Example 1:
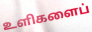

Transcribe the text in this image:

உளிகளைப்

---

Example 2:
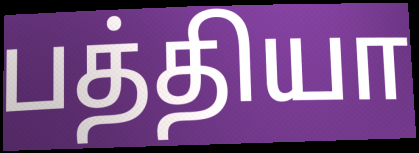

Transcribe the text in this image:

பத்தியா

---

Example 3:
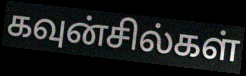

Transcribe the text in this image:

கவுன்சில்கள்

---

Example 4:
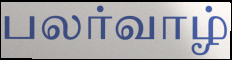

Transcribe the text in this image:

பலர்வாழ்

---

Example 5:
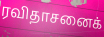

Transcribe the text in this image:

ரவிதாசனைக்